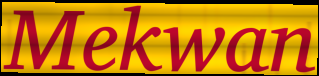
Mekwan